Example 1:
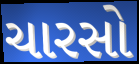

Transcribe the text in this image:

ચારસો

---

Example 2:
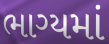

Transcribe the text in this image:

ભાગ્યમાં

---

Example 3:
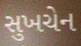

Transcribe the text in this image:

સુખચેન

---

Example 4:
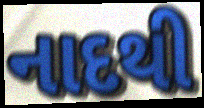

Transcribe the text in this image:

નાદથી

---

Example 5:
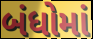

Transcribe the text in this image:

બંધોમાં